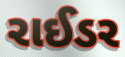
રાઈડર